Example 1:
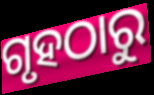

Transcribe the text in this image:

ଗୃହଠାରୁ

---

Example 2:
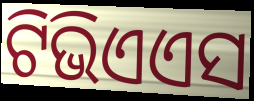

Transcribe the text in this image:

ଟିଭିଏଏସ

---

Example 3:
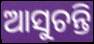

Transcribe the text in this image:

ଆସୁଚନ୍ତି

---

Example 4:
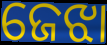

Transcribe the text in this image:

ଜେଝା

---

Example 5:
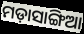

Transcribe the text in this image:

ମଡ଼ାସାଙ୍ଗିଆ